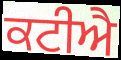
ਕਟੀਐ